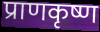
प्राणकृष्ण